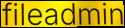
fileadmin